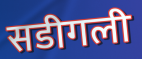
सडीगली